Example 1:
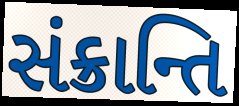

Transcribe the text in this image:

સંક્રાન્તિ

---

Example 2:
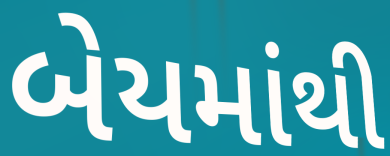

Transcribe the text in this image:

બેયમાંથી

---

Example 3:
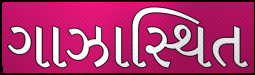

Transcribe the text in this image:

ગાઝાસ્થિત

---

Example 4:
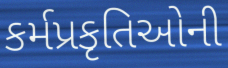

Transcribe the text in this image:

કર્મપ્રકૃતિઓની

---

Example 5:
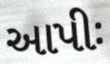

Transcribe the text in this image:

આપીઃ